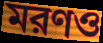
মরণও